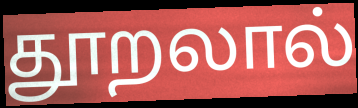
தூறலால்